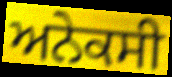
ਅਨੇਕਸੀ